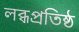
লব্ধপ্রতিষ্ঠ